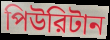
পিউরিটান